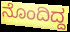
ನೊಂದಿದ್ದ